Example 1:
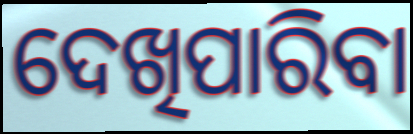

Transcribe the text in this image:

ଦେଖିପାରିବା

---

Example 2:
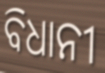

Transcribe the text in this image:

ବିଧାନୀ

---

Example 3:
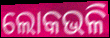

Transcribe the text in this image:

ଲୋକଭଳି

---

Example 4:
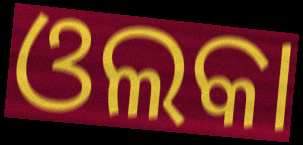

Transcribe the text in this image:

ଓଲକା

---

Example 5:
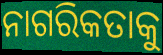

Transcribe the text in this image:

ନାଗରିକତାକୁ